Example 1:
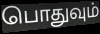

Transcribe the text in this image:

பொதுவும்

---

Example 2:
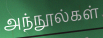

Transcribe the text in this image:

அந்நூல்கள்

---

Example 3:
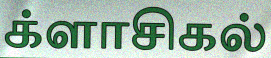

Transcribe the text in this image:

க்ளாசிகல்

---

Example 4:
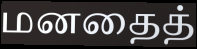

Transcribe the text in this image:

மனதைத்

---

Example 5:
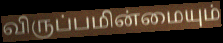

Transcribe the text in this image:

விருப்பமின்மையும்